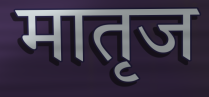
मातृज